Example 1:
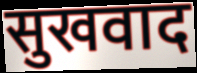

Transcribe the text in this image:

सुखवाद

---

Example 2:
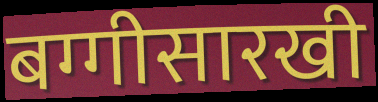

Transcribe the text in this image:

बग्गीसारखी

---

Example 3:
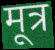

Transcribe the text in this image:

मूत्र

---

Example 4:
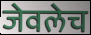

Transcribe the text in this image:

जेवलेच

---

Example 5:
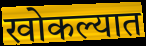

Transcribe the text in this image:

खोकल्यात